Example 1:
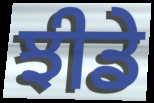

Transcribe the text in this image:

ਝੀਡੇ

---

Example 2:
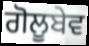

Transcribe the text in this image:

ਗੋਲੂਬੇਵ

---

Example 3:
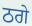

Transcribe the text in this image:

ਠਗੇ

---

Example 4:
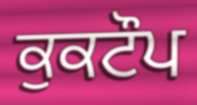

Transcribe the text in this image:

ਕੁਕਟੌਪ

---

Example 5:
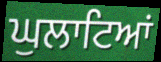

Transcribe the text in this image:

ਘੁਲਾਟਿਆਂ